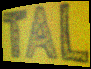
TAL